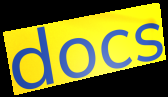
docs